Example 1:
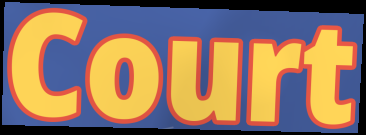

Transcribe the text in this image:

Court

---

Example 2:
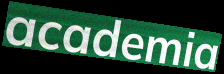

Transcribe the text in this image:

academia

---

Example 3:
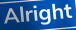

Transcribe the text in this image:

Alright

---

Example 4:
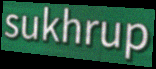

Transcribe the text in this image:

sukhrup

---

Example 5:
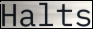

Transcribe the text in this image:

Halts